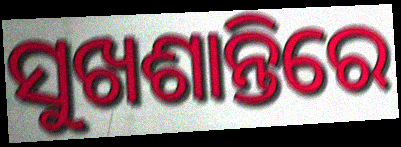
ସୁଖଶାନ୍ତିରେ